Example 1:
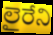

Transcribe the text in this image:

లైరేని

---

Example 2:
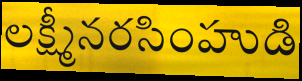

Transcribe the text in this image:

లక్ష్మీనరసింహుడి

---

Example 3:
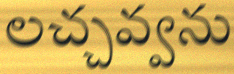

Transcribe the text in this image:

లచ్చవ్వను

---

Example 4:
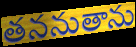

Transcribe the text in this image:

తననుతాను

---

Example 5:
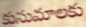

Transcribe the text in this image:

కుసుమాలకు